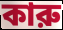
কারু